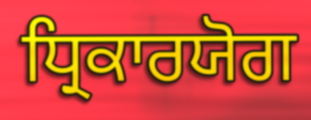
ਧ੍ਰਿਕਾਰਯੋਗ